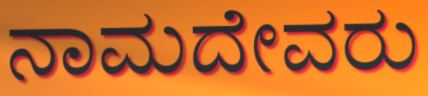
ನಾಮದೇವರು